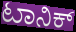
ಟಾನಿಕ್